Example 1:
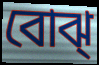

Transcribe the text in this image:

বোঝ্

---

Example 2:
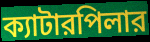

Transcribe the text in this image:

ক্যাটারপিলার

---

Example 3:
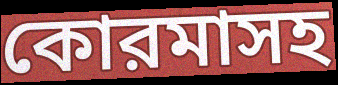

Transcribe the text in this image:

কোরমাসহ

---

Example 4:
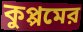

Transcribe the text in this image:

কুপ্পমের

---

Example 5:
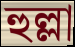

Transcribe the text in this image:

হুল্লা